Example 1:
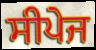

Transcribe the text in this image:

ਸੀਪੇਜ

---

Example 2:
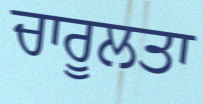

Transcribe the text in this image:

ਚਾਰੂਲਤਾ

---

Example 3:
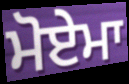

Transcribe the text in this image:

ਮੋਏਮਾ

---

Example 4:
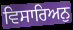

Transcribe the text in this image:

ਵਿਸਾਰਿਅਨੁ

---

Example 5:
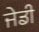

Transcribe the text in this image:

ਜੇਡੀ